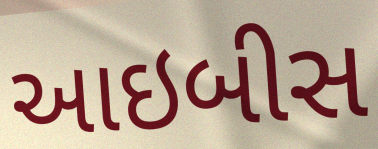
આઇબીસ